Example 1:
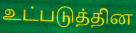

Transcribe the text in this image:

உட்படுத்தின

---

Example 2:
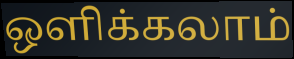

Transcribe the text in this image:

ஒளிக்கலாம்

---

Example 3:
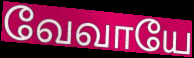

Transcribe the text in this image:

வேவாயே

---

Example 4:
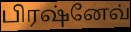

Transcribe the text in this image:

பிரஷ்னேவ்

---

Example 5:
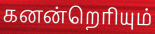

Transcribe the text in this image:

கனன்றெரியும்